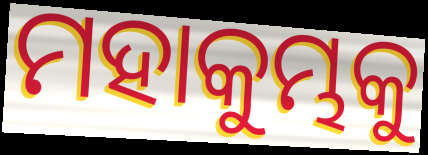
ମହାକୁମ୍ଭକୁ